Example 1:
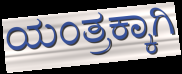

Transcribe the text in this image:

ಯಂತ್ರಕ್ಕಾಗಿ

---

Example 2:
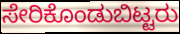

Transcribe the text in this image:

ಸೇರಿಕೊಂಡುಬಿಟ್ಟರು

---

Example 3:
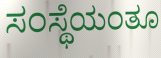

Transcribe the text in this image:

ಸಂಸ್ಥೆಯಂತೂ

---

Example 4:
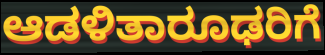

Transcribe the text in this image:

ಆಡಳಿತಾರೂಢರಿಗೆ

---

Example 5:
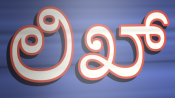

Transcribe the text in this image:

ಲಿಖ್